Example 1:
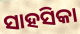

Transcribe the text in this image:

ସାହସିକା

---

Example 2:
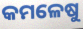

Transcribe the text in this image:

କମଳେଷୁ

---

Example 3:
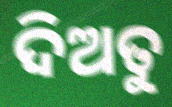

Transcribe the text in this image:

ଦିଅତୁ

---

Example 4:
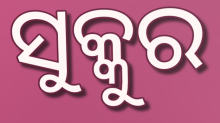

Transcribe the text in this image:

ସୁକ୍କୁର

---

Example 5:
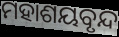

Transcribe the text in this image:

ମହାଶୟବୃନ୍ଦ